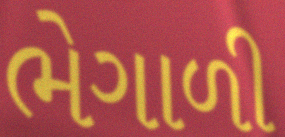
ભેગાળી